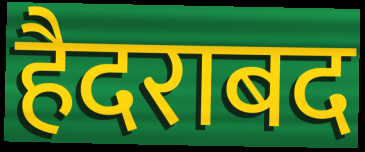
हैदराबद